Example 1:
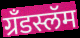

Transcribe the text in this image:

ग्रँडस्लॅम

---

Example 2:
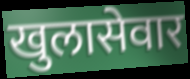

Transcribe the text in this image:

खुलासेवार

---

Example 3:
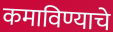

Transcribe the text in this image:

कमाविण्याचे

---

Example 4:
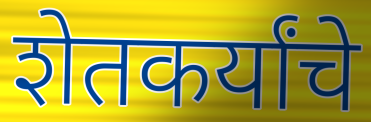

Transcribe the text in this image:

शेतकर्यांचे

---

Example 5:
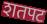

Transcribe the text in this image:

शतपट